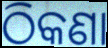
ଠିକଣା